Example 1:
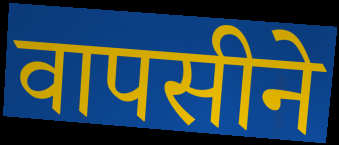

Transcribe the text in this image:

वापसीने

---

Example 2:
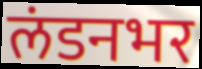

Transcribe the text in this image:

लंडनभर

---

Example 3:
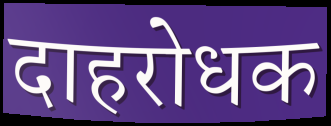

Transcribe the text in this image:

दाहरोधक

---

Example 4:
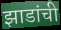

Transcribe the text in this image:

झाडांची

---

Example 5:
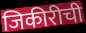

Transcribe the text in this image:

जिकीरीची